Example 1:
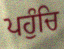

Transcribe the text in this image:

ਪਹੁੰਚਿ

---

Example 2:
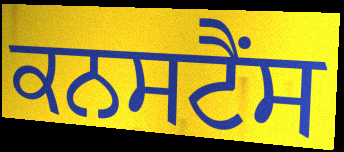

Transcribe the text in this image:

ਕਨਸਟੈਂਸ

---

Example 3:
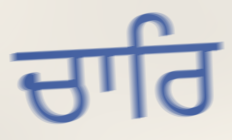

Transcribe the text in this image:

ਚਾਰਿ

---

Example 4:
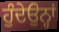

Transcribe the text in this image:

ਹੁੰਦੇਉਨ੍ਹਾਂ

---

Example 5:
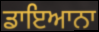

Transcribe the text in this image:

ਡਾਇਆਨਾ